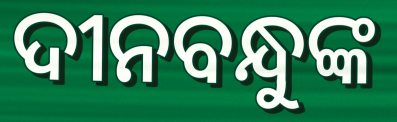
ଦୀନବନ୍ଧୁଙ୍କ